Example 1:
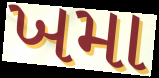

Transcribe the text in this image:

ખમા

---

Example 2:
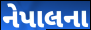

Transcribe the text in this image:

નેપાલના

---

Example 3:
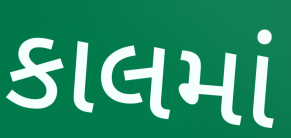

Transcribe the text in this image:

કાલમાં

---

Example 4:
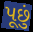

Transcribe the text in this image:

પૂછું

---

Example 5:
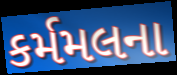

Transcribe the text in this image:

કર્મમલના